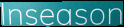
Inseason